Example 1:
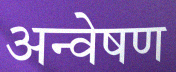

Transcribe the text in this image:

अन्वेषण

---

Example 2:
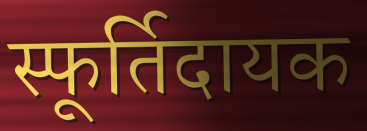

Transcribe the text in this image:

स्फूर्तिदायक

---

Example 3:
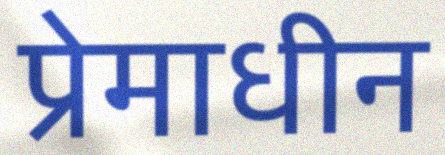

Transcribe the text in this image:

प्रेमाधीन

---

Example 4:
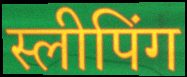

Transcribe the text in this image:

स्लीपिंग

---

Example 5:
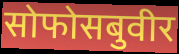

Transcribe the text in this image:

सोफोसबुवीर